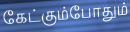
கேட்கும்போதும்